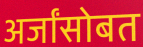
अर्जांसोबत